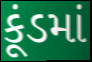
કૂંડમાં